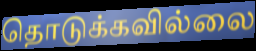
தொடுக்கவில்லை